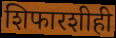
शिफारशीही